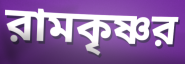
রামকৃষ্ণর